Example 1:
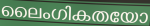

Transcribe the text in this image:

ലൈംഗികതയോ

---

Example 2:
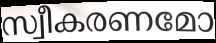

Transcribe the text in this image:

സ്വീകരണമോ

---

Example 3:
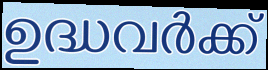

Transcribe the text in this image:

ഉദ്ധവർക്ക്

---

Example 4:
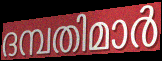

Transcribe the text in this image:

ദമ്പതിമാർ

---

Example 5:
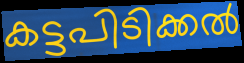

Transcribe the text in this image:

കട്ടപിടിക്കൽ